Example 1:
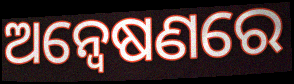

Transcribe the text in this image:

ଅନ୍ବେଷଣରେ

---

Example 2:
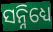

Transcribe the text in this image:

ସନ୍ନିଧ୍ୟେ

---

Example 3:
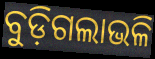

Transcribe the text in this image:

ବୁଡ଼ିଗଲାଭଳି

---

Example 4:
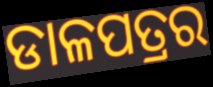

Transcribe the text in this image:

ଡାଳପତ୍ରର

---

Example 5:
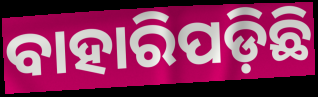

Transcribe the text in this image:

ବାହାରିପଡ଼ିଛି